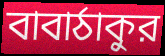
বাবাঠাকুর